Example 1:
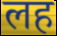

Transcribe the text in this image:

लह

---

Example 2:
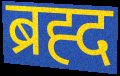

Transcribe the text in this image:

ब्रह्द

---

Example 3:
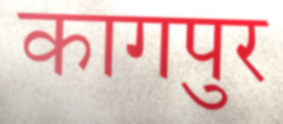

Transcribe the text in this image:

कागपुर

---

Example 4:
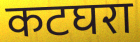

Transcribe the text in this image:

कटघरा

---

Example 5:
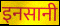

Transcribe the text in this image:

इनसानी